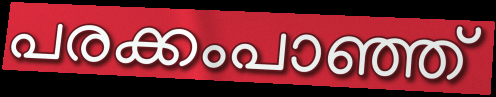
പരക്കംപാഞ്ഞ്